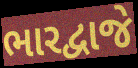
ભારદ્વાજે